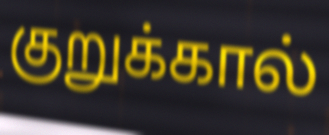
குறுக்கால்